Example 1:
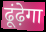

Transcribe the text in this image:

ढूंढ़ेगा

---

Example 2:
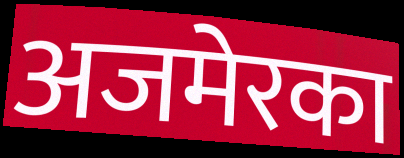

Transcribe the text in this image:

अजमेरका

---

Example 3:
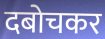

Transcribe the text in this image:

दबोचकर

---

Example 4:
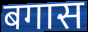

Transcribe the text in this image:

बगास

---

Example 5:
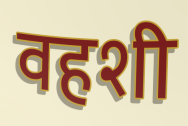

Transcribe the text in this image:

वहशी